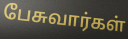
பேசுவார்கள்